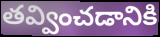
తవ్వించడానికి